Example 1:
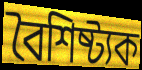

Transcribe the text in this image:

বৈশিষ্ট্যক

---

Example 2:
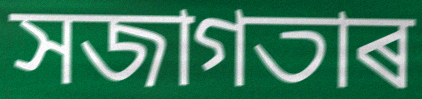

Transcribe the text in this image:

সজাগতাৰ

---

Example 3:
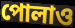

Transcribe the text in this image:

পোলাও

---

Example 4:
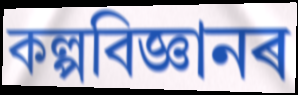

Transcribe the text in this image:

কল্পবিজ্ঞানৰ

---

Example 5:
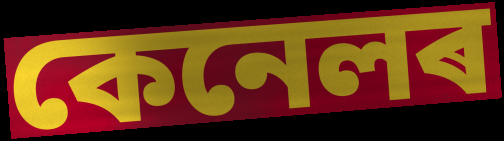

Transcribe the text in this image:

কেনেলৰ